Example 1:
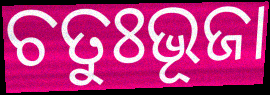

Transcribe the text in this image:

ଚତୁଃଭୂଜା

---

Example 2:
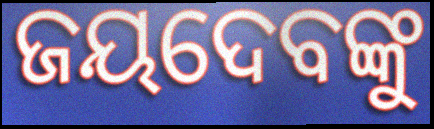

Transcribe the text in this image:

ଜୟଦେବଙ୍କୁ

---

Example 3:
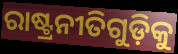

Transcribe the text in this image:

ରାଷ୍ଟ୍ରନୀତିଗୁଡ଼ିକୁ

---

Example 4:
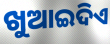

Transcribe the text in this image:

ଖୁଆଇଦିଏ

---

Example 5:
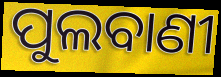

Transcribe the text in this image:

ପୁଲବାଣୀ